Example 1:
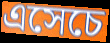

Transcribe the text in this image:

এসেচে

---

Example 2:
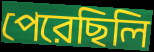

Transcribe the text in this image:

পেরেছিলি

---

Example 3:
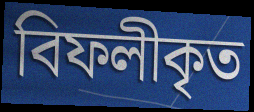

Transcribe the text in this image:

বিফলীকৃত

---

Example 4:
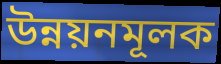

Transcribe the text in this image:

উন্নয়নমূলক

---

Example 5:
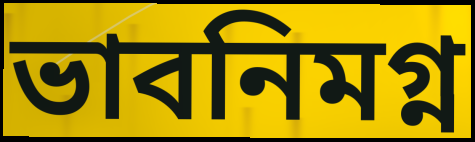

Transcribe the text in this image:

ভাবনিমগ্ন